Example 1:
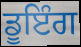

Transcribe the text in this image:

ਡੂਇੰਗ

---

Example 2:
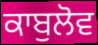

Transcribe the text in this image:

ਕਾਬੁਲੋਵ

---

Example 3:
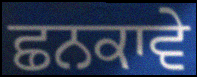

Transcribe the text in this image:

ਛਨਕਾਵੇ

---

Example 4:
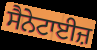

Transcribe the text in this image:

ਸੈਨੇਟਾਈਜ਼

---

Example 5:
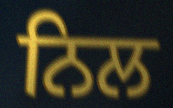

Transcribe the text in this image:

ਨਿਲ